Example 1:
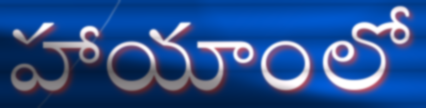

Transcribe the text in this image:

హాయాంలో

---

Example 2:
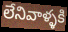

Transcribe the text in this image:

లేనివాళ్ళకి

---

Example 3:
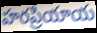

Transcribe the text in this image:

హరప్రియాయ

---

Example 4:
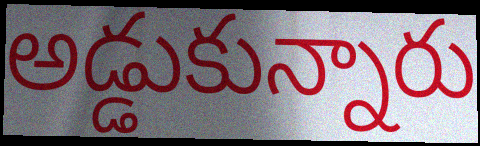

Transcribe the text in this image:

అడ్డుకున్నారు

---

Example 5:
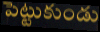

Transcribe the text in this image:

పెట్టుకుండు